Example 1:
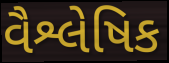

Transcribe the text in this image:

વૈશ્લેષિક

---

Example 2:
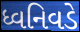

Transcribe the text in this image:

ધ્વનિવડે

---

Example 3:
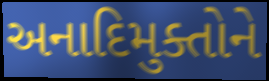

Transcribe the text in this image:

અનાદિમુક્તોને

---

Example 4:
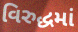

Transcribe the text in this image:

વિરુદ્ધમાં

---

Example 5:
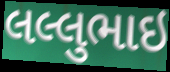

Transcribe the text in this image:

લલ્લુભાઇ